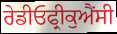
ਰੇਡੀਓਫ੍ਰੀਕੁਐਂਸੀ